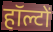
हॉल्टों